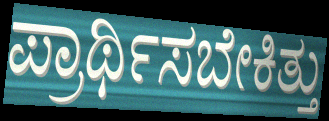
ಪ್ರಾರ್ಥಿಸಬೇಕಿತ್ತು